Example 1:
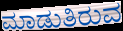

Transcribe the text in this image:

ಮಾಡುತಿರುವ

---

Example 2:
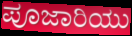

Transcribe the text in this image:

ಪೂಜಾರಿಯು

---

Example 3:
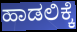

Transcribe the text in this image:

ಹಾಡಲಿಕ್ಕೆ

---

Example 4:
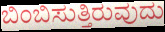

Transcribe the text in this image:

ಬಿಂಬಿಸುತ್ತಿರುವುದು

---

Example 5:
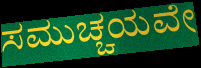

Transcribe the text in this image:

ಸಮುಚ್ಚಯವೇ